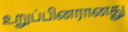
உறுப்பினரானது